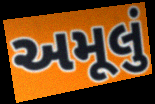
અમૂલું